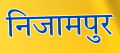
निजामपुर